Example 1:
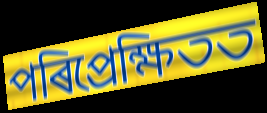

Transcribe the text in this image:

পৰিপ্ৰেক্ষিতত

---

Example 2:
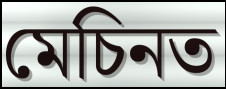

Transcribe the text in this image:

মেচিনত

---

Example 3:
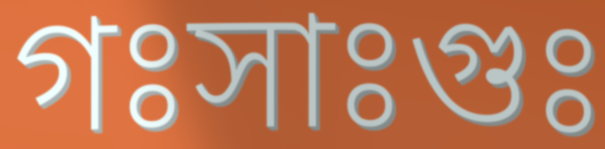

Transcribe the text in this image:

গঃসাঃগুঃ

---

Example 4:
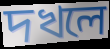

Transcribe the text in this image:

দখলে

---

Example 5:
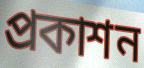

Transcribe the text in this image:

প্ৰকাশন